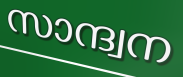
സാന്ദ്വന